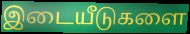
இடையீடுகளை